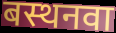
बस्थनवा